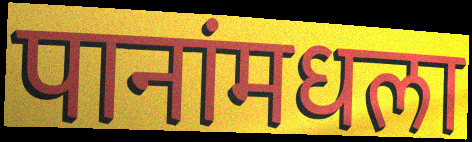
पानांमधला